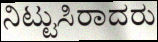
ನಿಟ್ಟುಸಿರಾದರು